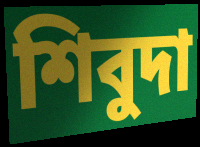
শিবুদা